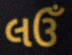
લઉઁ